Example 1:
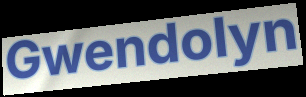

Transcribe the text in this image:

Gwendolyn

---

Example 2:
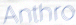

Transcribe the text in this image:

Anthro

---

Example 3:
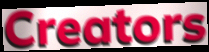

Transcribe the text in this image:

Creators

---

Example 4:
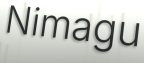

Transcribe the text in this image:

Nimagu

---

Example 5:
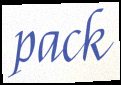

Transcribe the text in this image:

pack